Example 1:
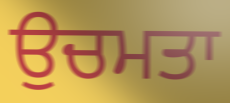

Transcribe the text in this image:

ਉਚਮਤਾ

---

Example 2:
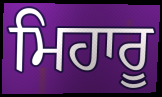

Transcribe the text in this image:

ਮਿਹਾਰੂ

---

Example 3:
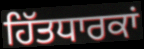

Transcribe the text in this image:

ਹਿੱਤਧਾਰਕਾਂ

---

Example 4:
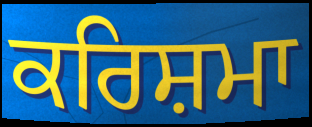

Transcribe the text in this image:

ਕਰਿਸ਼ਮਾ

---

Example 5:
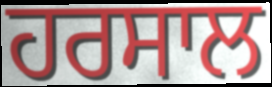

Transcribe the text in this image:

ਹਰਸਾਲ